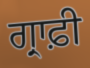
ਗ੍ਰਾਫ਼ੀ